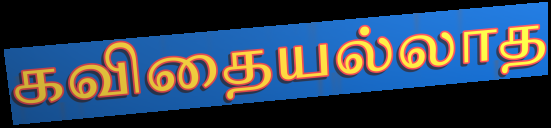
கவிதையல்லாத